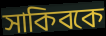
সাকিবকে